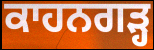
ਕਾਹਨਗੜ੍ਹ